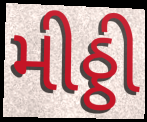
મીઠ્ઠી